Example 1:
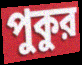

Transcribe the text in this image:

পুকুর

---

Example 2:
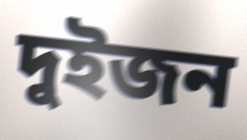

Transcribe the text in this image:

দুইজন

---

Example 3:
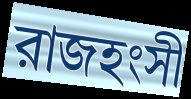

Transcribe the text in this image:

রাজহংসী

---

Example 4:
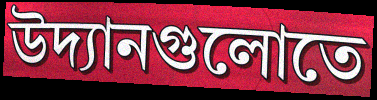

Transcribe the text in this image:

উদ্যানগুলোতে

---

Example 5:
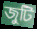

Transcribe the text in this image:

জুটি